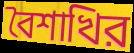
বৈশাখির